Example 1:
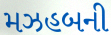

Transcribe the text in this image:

મઝહબની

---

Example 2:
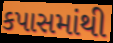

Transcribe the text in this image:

કપાસમાંથી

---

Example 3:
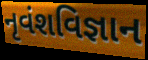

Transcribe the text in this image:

નૃવંશવિજ્ઞાન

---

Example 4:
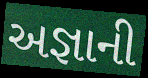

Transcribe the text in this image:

અજ્ઞાની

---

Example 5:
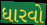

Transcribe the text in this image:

ધારવો